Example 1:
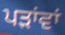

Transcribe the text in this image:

ਪੜਾਂਵਾਂ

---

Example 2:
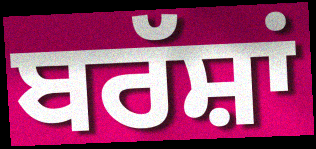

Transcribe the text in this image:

ਬਰੱਸ਼ਾਂ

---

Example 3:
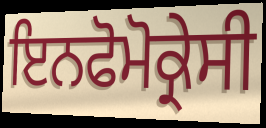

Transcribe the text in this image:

ਇਨਫੋਮੋਕ੍ਰੇਸੀ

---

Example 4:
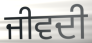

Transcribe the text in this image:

ਜੀਵਦੀ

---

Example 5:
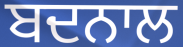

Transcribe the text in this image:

ਬਦਨਾਲ